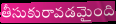
తీసుకురావడమైంది